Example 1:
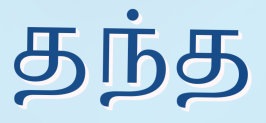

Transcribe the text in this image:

தந்த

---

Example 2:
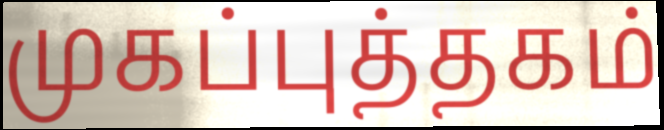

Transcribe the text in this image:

முகப்புத்தகம்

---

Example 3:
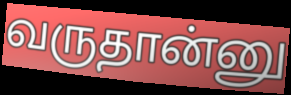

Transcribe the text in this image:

வருதான்னு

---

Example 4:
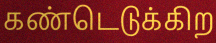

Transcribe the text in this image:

கண்டெடுக்கிற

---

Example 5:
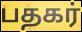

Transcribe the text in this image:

பதகர்